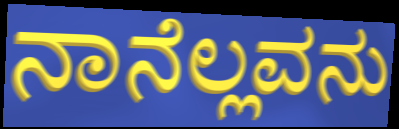
ನಾನೆಲ್ಲವನು